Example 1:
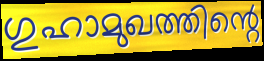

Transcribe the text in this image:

ഗുഹാമുഖത്തിന്റെ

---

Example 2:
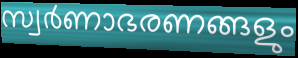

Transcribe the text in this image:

സ്വർണാഭരണങ്ങളും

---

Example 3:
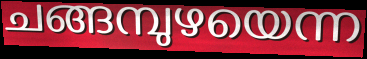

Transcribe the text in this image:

ചങ്ങമ്പുഴയെന്ന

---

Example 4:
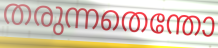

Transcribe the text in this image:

തരുന്നതെന്തോ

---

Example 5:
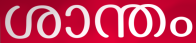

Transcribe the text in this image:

ശാന്തം